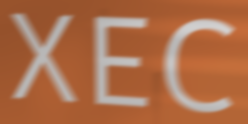
XEC